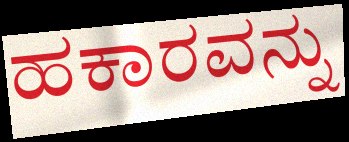
ಹಕಾರವನ್ನು